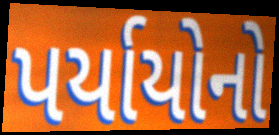
પર્યાયોનો